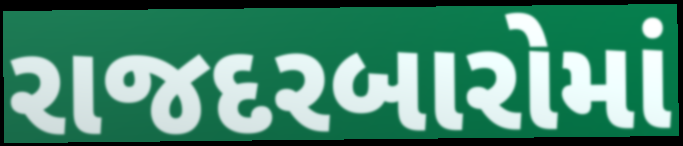
રાજદરબારોમાં